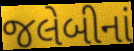
જલેબીનાં